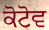
ਕੋਟੋਵ